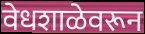
वेधशाळेवरून